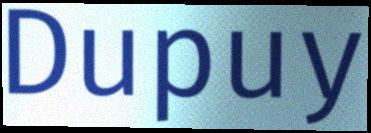
Dupuy